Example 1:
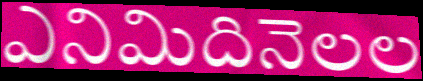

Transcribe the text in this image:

ఎనిమిదినెలల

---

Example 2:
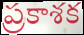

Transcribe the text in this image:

ప్రకాశక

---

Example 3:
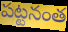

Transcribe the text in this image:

పట్టనంత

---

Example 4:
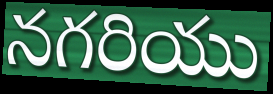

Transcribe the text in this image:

నగరియు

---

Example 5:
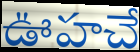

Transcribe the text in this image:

ఊహచే